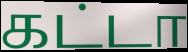
கட்டா